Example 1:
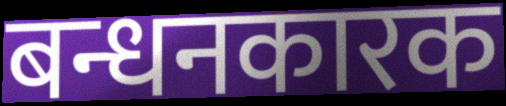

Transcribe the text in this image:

बन्धनकारक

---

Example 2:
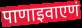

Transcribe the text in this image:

पाणाइवाएणं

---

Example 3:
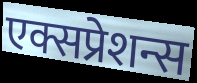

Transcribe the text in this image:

एक्सप्रेशन्स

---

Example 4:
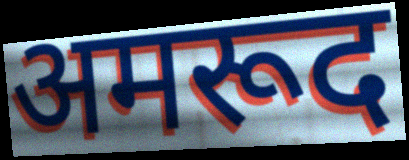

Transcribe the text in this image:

अमरूद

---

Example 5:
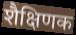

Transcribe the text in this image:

शैक्षिणक